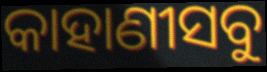
କାହାଣୀସବୁ